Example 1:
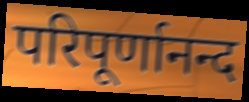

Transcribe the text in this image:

परिपूर्णानन्द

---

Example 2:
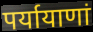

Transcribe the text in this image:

पर्यायाणां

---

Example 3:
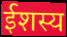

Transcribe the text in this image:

ईशस्य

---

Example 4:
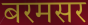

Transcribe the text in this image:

बरमसर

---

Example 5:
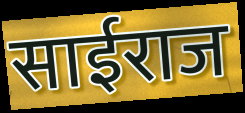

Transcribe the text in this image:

साईराज